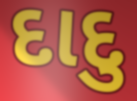
દાદુ